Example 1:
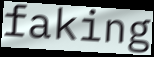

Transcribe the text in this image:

faking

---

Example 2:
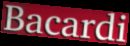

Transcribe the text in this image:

Bacardi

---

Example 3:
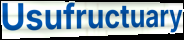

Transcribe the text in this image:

Usufructuary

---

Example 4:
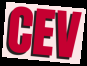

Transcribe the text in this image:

CEV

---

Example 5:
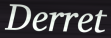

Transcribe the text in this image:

Derret